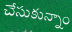
చేసుకున్నాం